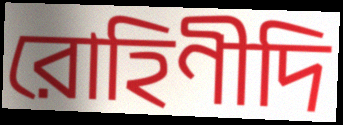
রোহিণীদি